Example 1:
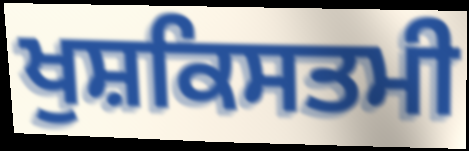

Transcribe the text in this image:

ਖੁਸ਼ਕਿਸਤਮੀ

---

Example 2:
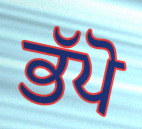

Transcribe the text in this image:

ਭੱਪੋ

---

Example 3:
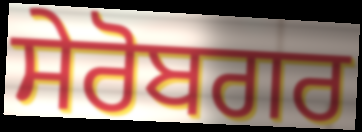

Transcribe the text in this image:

ਸੇਰੋਬਗਰ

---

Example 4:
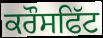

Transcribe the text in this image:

ਕਰੌਸਫਿੱਟ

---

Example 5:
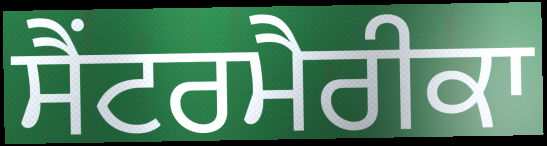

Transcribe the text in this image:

ਸੈਂਟਰਮੈਰੀਕਾ